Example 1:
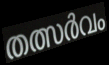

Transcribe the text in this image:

തത്സർവം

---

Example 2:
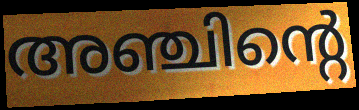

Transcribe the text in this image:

അഞ്ചിന്റെ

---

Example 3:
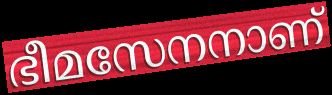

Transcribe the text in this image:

ഭീമസേനനാണ്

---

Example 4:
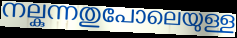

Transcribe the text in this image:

നല്കുന്നതുപോലെയുള്ള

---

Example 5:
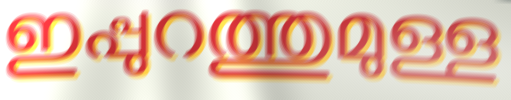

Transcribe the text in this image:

ഇപ്പുറത്തുമുള്ള